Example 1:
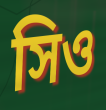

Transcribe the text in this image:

সিও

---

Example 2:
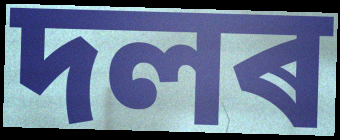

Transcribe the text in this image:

দলৰ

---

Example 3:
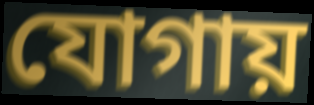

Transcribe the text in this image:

যোগায়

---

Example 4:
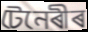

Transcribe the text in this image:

টেনেৰীৰ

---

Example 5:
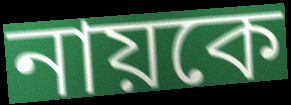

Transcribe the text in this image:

নায়কে